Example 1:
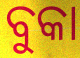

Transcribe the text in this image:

ବୁକା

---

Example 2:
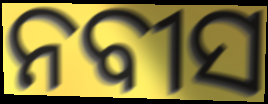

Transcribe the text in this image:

ନବୀସ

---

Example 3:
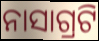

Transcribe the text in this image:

ନାସାଗ୍ରଟି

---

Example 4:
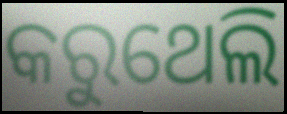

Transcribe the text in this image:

କରୁଥେଲି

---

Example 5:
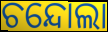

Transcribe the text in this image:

ଚନ୍ଦୋଲା